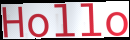
Hollo